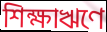
শিক্ষাঋণে